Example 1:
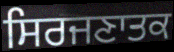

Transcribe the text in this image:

ਸਿਰਜਣਾਤਕ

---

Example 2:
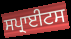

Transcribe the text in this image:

ਸਪ੍ਰਾਈਟਸ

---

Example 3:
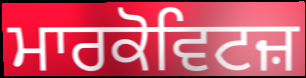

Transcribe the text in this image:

ਮਾਰਕੋਵਿਟਜ਼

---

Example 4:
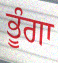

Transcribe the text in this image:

ਭੂੰਗਾ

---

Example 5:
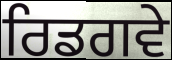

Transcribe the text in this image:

ਰਿਡਗਵੇ